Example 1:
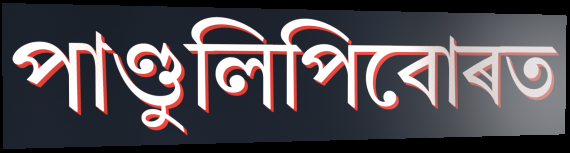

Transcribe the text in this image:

পাণ্ডুলিপিবোৰত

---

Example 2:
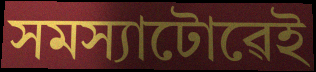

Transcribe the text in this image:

সমস্যাটোৱেই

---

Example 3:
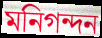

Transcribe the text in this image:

মনিগন্দন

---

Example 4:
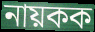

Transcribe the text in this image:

নায়কক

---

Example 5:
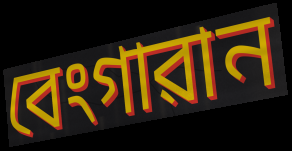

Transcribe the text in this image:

বেংগাৱান